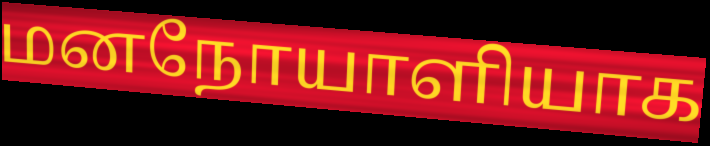
மனநோயாளியாக